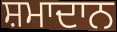
ਸ਼ਮਾਦਾਨ